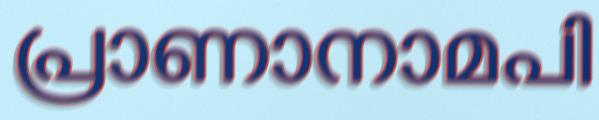
പ്രാണാനാമപി